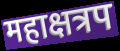
महाक्षत्रप